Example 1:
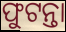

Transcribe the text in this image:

ଫୁଟନ୍ତା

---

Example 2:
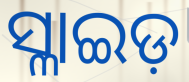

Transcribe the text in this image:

ସ୍ଳାଇଡ଼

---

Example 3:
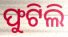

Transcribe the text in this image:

ଫୁଟିଲି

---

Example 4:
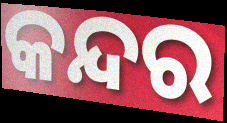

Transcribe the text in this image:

କନ୍ଦର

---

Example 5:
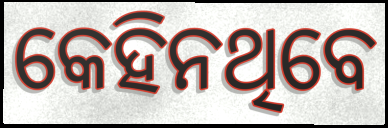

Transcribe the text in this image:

କେହିନଥିବେ